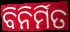
ବିନିର୍ମିତ